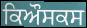
ਕਿਔਸਕਸ